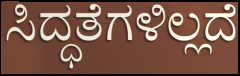
ಸಿದ್ಧತೆಗಳಿಲ್ಲದೆ